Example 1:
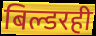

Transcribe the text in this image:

बिल्डरही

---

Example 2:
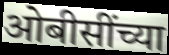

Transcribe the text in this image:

ओबीसींच्या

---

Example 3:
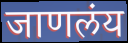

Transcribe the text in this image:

जाणलंय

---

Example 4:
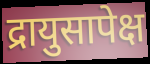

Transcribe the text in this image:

द्रायुसापेक्ष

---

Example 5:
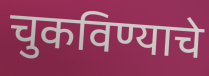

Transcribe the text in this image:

चुकविण्याचे